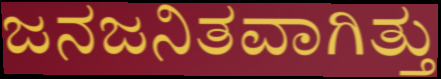
ಜನಜನಿತವಾಗಿತ್ತು